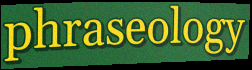
phraseology